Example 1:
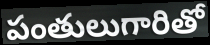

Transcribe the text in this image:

పంతులుగారితో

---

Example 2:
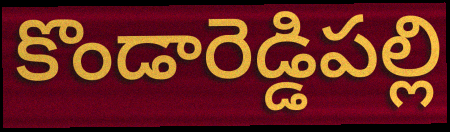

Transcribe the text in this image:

కొండారెడ్డిపల్లి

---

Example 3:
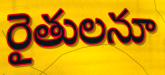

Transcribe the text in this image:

రైతులనూ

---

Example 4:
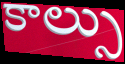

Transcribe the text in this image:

కాల్సు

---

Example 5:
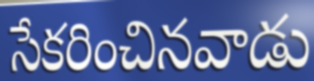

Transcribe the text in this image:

సేకరించినవాడు